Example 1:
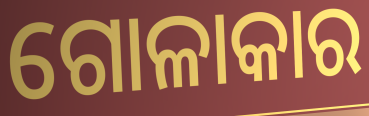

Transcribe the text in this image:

ଗୋଳାକାର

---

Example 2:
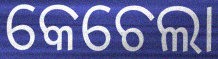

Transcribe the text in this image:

କେଚେଲା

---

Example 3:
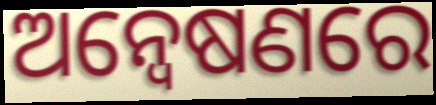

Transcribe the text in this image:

ଅନ୍ବେଷଣରେ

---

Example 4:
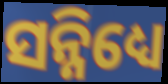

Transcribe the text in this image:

ସନ୍ନିଧ୍ୟେ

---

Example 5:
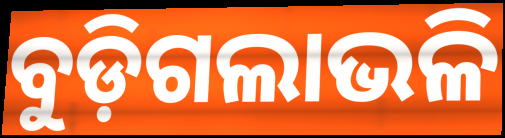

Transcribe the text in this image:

ବୁଡ଼ିଗଲାଭଳି